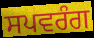
ਸਪਵਰੰਗ